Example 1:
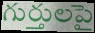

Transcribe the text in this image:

గుర్తులపై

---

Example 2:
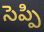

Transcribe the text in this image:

సెప్పి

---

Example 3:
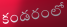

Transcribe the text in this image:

కండరంలో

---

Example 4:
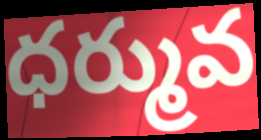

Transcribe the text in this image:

ధర్మువ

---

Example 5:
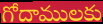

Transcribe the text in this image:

గోదాములకు